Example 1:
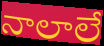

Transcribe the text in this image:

నాలాలే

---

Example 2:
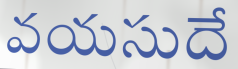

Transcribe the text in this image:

వయసుదే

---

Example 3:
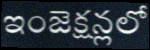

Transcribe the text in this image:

ఇంజెక్షన్లలో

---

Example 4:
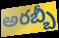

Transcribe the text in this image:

అరబ్బీ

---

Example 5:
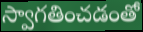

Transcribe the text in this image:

స్వాగతించడంతో